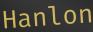
Hanlon